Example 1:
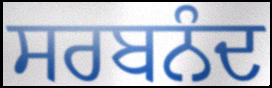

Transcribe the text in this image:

ਸਰਬਨੰਦ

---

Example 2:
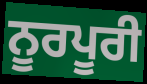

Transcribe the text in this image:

ਨੂਰਪੂਰੀ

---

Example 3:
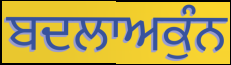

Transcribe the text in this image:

ਬਦਲਾਅਕੁੰਨ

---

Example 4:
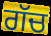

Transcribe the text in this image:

ਗੱਚ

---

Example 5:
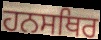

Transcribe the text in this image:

ਹਨਸਥਿਰ